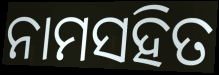
ନାମସହିତ